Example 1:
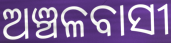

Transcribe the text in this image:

ଅଞ୍ଚଳବାସୀ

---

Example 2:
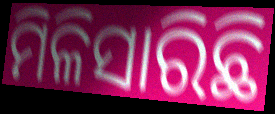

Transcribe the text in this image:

ମିଳିସାରିଛି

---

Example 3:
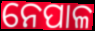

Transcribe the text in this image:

ନେପାଳ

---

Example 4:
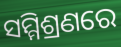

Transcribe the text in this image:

ସମ୍ମିଶ୍ରଣରେ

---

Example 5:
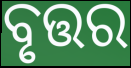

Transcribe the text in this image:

ବୃତ୍ତର